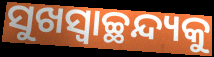
ସୁଖସ୍ଵାଚ୍ଛନ୍ଦ୍ୟକୁ